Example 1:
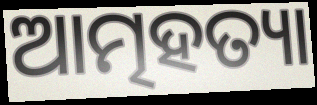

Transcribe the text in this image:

ଆତ୍ମହତ୍ୟା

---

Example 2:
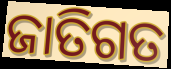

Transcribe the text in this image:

ଜାତିଗତ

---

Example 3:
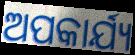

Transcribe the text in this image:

ଅପକାର୍ଯ୍ୟ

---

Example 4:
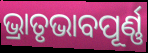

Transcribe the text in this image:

ଭ୍ରାତୃଭାବପୂର୍ଣ୍ଣ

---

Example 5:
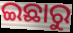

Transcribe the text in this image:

ଇଛାରୁ